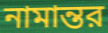
নামান্তর